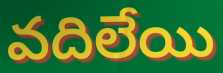
వదిలేయి